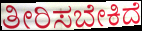
ತೀರಿಸಬೇಕಿದೆ